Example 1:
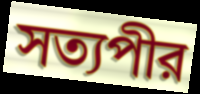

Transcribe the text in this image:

সত্যপীর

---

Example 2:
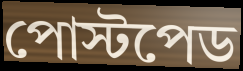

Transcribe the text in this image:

পোস্টপেড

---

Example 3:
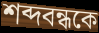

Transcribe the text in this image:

শব্দবন্ধকে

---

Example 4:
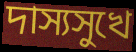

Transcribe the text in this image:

দাস্যসুখে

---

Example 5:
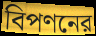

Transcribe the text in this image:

বিপণনের